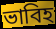
ভাবিহ